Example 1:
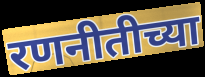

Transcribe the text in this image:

रणनीतीच्या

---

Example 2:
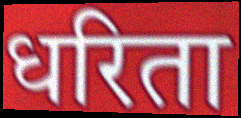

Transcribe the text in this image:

धरिता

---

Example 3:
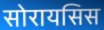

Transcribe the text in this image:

सोरायसिस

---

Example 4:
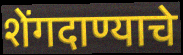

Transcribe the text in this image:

शेंगदाण्याचे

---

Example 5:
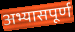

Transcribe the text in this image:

अभ्यासपूर्ण